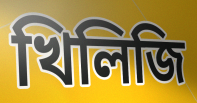
খিলিজি